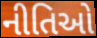
નીતિઓ